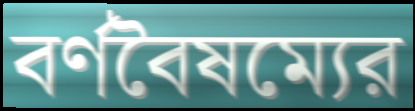
বর্ণবৈষম্যের